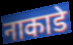
नाकाडे